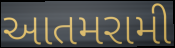
આતમરામી